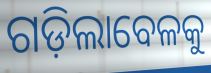
ଗଡ଼ିଲାବେଳକୁ